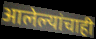
आलेल्यांचाही